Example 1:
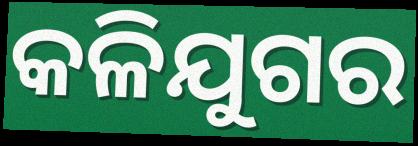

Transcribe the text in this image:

କଳିଯୁଗର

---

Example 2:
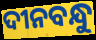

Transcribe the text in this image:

ଦୀନବନ୍ଧୁ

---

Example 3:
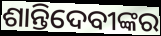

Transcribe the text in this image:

ଶାନ୍ତିଦେବୀଙ୍କର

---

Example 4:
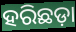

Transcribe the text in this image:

ହରିଛଡ଼ା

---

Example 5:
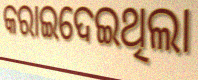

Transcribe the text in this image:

କରାଇଦେଇଥିଲା